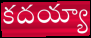
కదయ్యా